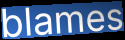
blames